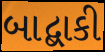
બાદ્બાકી